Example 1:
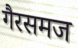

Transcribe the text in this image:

गैरसमज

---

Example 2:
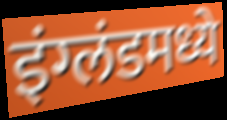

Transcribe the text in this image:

इंग्लंडमध्ये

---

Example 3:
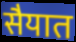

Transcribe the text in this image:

सैयात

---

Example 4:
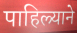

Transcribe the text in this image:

पाहिल्याने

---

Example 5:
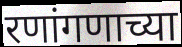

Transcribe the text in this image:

रणांगणाच्या